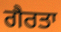
ਗੈਰਤਾ